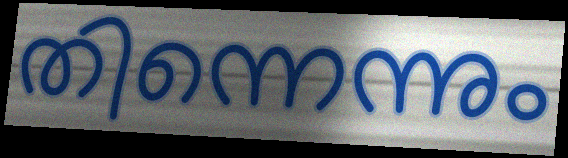
തിന്നെന്നും